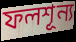
ফলশূন্য